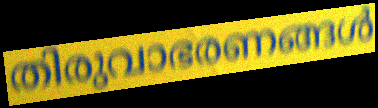
തിരുവാഭരണങ്ങൾ